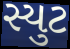
સ્યુટ